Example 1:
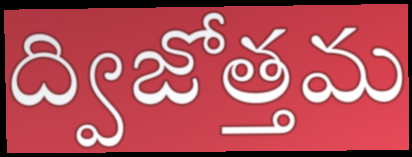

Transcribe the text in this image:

ద్విజోత్తమ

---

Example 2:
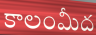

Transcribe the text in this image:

కాలంమీద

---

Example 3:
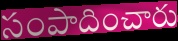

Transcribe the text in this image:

సంపాదించారు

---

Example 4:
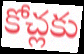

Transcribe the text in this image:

కోచ్లకు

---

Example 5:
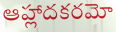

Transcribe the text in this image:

ఆహ్లాదకరమో